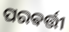
ପରଵର୍ତ୍ତୀ